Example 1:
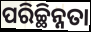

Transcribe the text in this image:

ପରିଚ୍ଛିନ୍ନତା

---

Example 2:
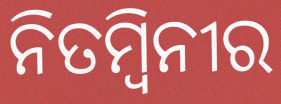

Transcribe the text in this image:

ନିତମ୍ବିନୀର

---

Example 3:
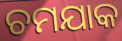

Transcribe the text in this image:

ଚମଯାକ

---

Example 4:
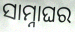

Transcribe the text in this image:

ସାମ୍ନାଘର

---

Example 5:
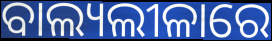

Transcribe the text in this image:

ବାଲ୍ୟଲୀଳାରେ